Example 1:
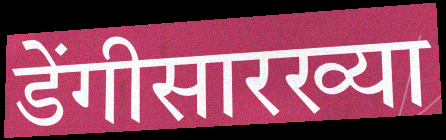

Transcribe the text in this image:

डेंगीसारख्या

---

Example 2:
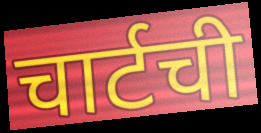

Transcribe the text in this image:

चार्टची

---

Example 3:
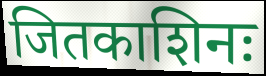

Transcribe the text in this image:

जितकाशिनः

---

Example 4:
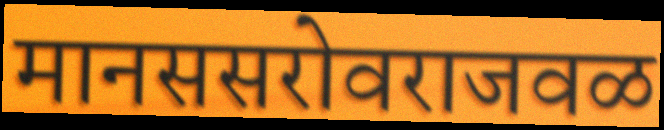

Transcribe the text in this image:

मानससरोवराजवळ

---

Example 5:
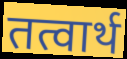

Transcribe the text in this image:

तत्वार्थ